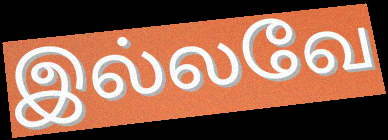
இல்லவே